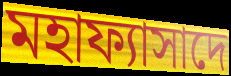
মহাফ্যাসাদে